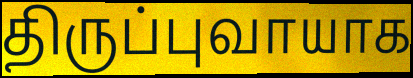
திருப்புவாயாக